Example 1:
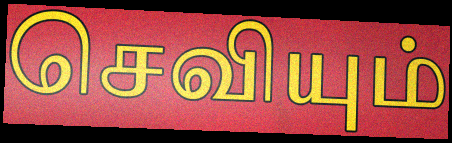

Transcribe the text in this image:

செவியும்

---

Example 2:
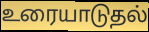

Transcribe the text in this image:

உரையாடுதல்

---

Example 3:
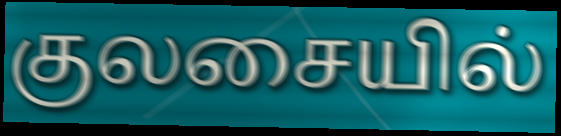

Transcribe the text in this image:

குலசையில்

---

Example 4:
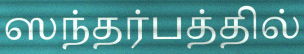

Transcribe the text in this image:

ஸந்தர்பத்தில்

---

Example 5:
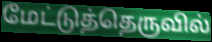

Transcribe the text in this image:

மேட்டுத்தெருவில்